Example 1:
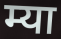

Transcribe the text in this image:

म्या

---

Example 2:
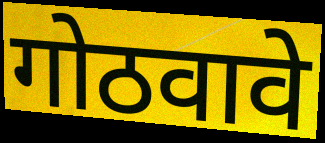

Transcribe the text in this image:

गोठवावे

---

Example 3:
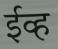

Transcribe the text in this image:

ईव्ह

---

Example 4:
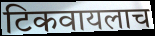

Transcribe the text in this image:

टिकवायलाच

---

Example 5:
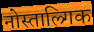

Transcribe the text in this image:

नोस्ताल्गिक